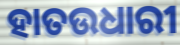
ହାତଉଧାରୀ